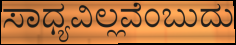
ಸಾಧ್ಯವಿಲ್ಲವೆಂಬುದು